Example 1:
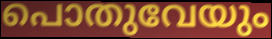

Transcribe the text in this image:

പൊതുവേയും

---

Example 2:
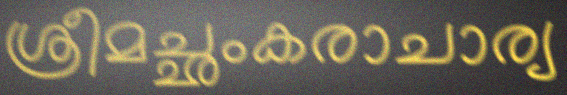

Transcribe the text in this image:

ശ്രീമച്ഛംകരാചാര്യ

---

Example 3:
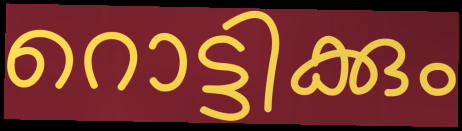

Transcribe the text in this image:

റൊട്ടിക്കും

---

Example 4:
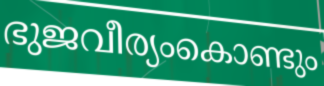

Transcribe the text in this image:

ഭുജവീര്യംകൊണ്ടും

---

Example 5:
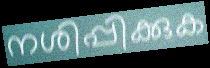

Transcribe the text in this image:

നശിപ്പിക്കുക